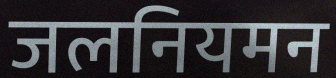
जलनियमन